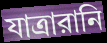
যাত্রারানি